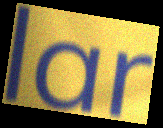
lar